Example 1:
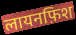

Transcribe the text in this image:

लायनफ़िश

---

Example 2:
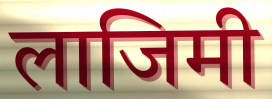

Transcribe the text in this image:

लाजिमी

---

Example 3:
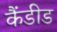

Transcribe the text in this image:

कैंडीड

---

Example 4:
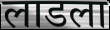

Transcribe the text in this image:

लाडला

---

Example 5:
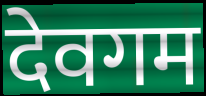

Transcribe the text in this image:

देवगम